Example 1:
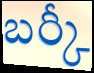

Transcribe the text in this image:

బర్కీ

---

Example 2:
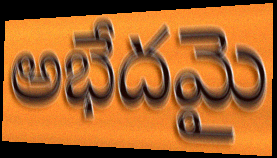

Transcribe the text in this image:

అభేదమై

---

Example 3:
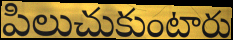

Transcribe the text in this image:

పిలుచుకుంటారు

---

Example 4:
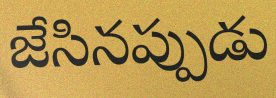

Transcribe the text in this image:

జేసినప్పుడు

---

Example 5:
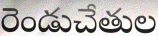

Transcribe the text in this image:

రెండుచేతుల